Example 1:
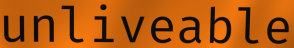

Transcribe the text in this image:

unliveable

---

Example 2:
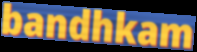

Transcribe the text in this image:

bandhkam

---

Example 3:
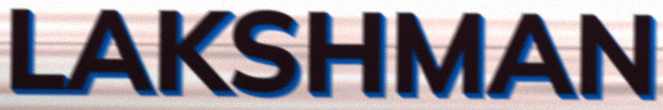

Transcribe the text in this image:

LAKSHMAN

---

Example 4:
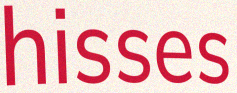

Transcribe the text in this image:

hisses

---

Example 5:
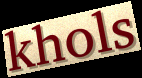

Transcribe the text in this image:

khols